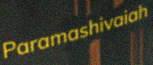
Paramashivaiah